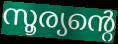
സൂര്യന്റെ